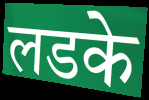
लडके